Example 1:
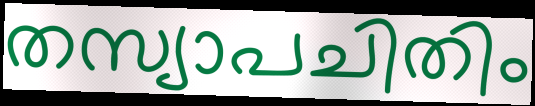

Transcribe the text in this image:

തസ്യാപചിതിം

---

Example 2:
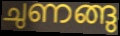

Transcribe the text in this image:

ചുണങ്ങു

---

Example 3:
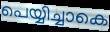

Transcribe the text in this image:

പെയ്യിച്ചാകെ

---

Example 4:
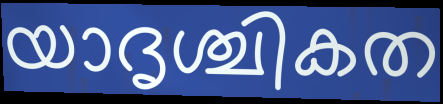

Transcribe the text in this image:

യാദൃശ്ചികത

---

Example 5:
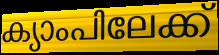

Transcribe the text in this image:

ക്യാംപിലേക്ക്